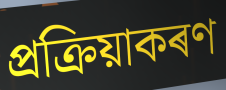
প্ৰক্ৰিয়াকৰণ